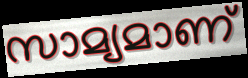
സാമ്യമാണ്